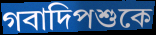
গবাদিপশুকে